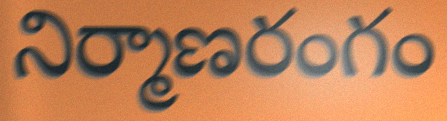
నిర్మాణరంగం